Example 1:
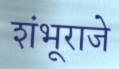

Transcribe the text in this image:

शंभूराजे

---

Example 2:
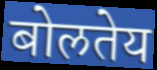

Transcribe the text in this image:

बोलतेय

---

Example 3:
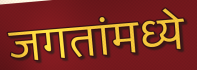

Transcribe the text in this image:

जगतांमध्ये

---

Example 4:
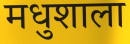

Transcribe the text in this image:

मधुशाला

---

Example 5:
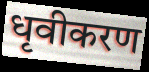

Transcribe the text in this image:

धृवीकरण